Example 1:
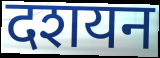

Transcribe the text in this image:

दशयन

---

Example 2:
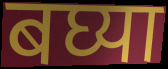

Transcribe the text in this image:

बघ्या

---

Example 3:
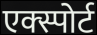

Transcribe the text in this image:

एक्‍स्पोर्ट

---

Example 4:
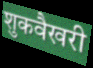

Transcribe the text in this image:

शुकवैखरी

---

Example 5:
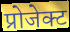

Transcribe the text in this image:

प्रोजेक्ट